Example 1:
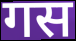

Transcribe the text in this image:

गस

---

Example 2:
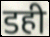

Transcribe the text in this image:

डही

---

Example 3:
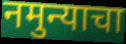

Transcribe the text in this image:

नमुन्याचा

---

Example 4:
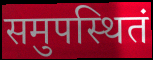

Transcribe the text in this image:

समुपस्थितं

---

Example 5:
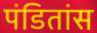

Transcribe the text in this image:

पंडितांस